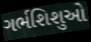
ગર્ભશિશુઓ